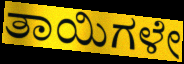
ತಾಯಿಗಳೇ